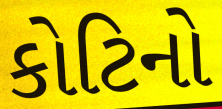
કોટિનો